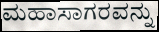
ಮಹಾಸಾಗರವನ್ನು